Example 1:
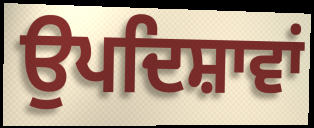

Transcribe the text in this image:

ਉਪਦਿਸ਼ਾਵਾਂ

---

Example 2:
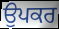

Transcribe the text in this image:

ਉਪਕਰ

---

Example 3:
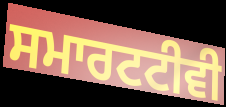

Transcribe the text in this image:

ਸਮਾਰਟਟੀਵੀ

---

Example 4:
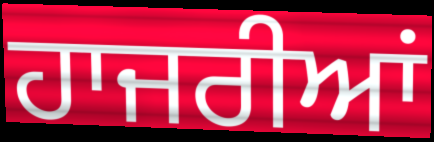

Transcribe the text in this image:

ਹਾਜਰੀਆਂ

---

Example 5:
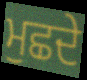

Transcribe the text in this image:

ਮੁਛਦੇ